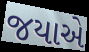
જયાએ